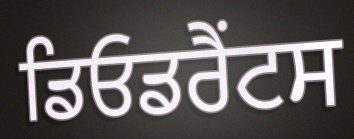
ਡਿਓਡਰੈਂਟਸ